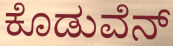
ಕೊಡುವೆನ್